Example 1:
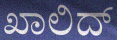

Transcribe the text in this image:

ಖಾಲಿದ್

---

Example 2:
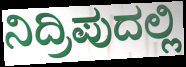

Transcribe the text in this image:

ನಿದ್ರಿಪುದಲ್ಲಿ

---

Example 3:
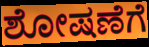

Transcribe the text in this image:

ಶೋಷಣೆಗೆ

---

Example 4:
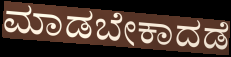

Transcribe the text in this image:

ಮಾಡಬೇಕಾದಡೆ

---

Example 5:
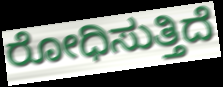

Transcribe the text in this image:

ರೋಧಿಸುತ್ತಿದೆ